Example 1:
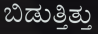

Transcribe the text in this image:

ಬಿಡುತ್ತಿತ್ತು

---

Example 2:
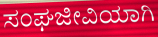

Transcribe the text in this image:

ಸಂಘಜೀವಿಯಾಗಿ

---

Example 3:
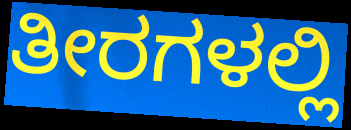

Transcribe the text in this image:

ತೀರಗಳಲ್ಲಿ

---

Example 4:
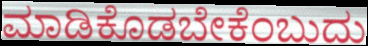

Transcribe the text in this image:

ಮಾಡಿಕೊಡಬೇಕೆಂಬುದು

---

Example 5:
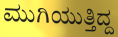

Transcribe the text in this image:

ಮುಗಿಯುತ್ತಿದ್ದ